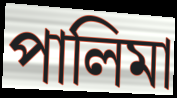
পালিমা